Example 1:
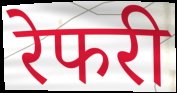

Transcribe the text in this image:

रेफरी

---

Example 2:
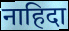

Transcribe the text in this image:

नाहिदा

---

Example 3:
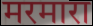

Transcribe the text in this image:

मरमारा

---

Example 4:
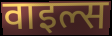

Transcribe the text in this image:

वाइल्स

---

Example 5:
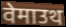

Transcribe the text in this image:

वेमाउथ